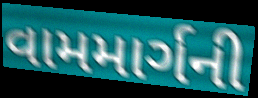
વામમાર્ગની